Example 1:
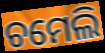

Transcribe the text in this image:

ଚମେଲି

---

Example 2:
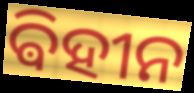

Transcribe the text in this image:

ଵିହୀନ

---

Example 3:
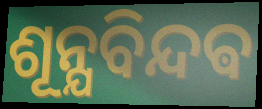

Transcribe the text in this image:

ଶୂନ୍ଯବିନ୍ଦଵ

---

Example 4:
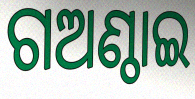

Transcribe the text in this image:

ଗଅଣ୍ଠାଇ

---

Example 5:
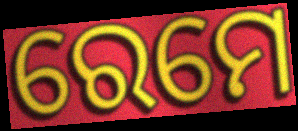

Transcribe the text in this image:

ରେମେ